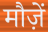
मौज़ें